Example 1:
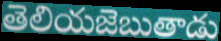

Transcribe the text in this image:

తెలియజెబుతాడు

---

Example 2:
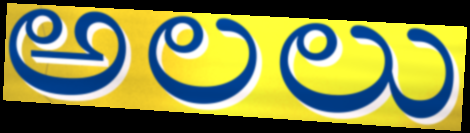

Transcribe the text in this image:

అలలు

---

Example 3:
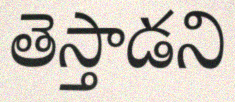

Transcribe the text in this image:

తెస్తాడని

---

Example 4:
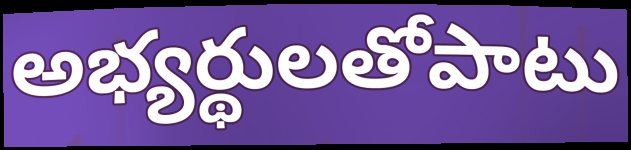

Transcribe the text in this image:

అభ్యర్థులతోపాటు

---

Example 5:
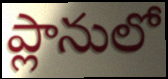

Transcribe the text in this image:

ప్లానులో